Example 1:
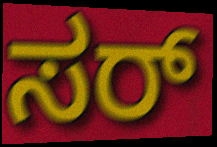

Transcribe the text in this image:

ಸರ್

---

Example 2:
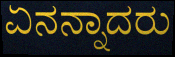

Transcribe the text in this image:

ಏನನ್ನಾದರು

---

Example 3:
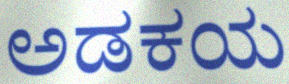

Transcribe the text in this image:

ಅಡಕಯ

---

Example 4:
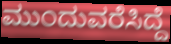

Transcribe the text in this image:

ಮುಂದುವರೆಸಿದ್ದೆ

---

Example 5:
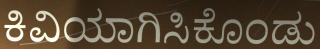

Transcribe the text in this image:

ಕಿವಿಯಾಗಿಸಿಕೊಂಡು